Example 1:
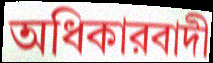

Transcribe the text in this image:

অধিকারবাদী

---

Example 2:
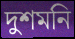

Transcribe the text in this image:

দুশমনি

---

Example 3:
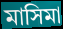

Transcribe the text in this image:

মাসিমা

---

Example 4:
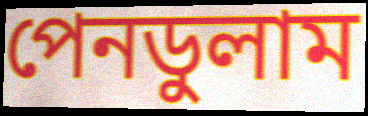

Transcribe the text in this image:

পেনডুলাম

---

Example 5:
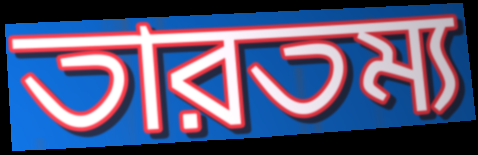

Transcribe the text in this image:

তারতম্য